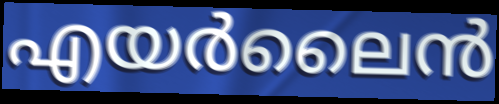
എയർലൈൻ